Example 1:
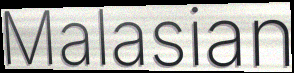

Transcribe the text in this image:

Malasian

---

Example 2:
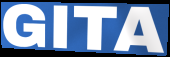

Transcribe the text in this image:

GITA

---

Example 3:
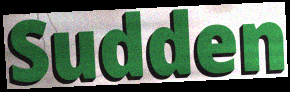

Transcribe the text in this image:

Sudden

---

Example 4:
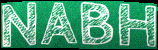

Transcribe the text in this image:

NABH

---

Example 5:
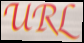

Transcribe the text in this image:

URL